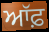
ਆੱਫ਼